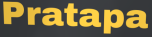
Pratapa